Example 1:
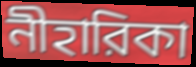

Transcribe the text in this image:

নীহারিকা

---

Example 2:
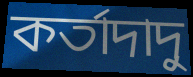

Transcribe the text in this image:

কর্তাদাদু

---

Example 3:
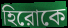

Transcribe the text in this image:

হিরোকে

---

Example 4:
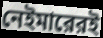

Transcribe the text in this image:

নেইমারেরই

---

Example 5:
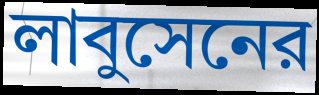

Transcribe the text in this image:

লাবুসেনের